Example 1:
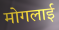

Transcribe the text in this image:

मोगलाई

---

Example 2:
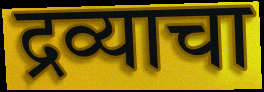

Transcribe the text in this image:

द्रव्याचा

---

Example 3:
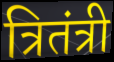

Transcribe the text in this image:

त्रितंत्री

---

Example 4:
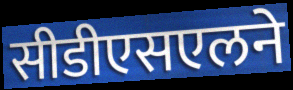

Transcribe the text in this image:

सीडीएसएलने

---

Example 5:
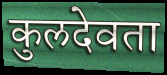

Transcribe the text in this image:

कुलदेवता